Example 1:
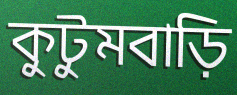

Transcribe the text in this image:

কুটুমবাড়ি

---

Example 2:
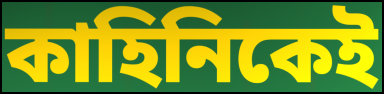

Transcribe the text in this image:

কাহিনিকেই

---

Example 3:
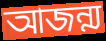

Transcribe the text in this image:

আজন্ম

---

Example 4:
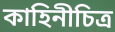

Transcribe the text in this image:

কাহিনীচিত্র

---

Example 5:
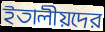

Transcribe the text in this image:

ইতালীয়দের